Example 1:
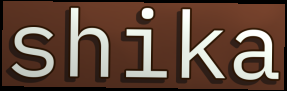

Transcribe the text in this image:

shika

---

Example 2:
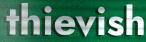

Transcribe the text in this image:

thievish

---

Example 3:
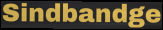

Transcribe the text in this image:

Sindbandge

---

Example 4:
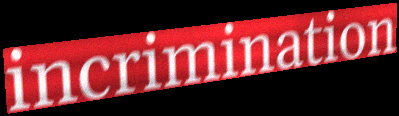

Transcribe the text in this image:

incrimination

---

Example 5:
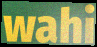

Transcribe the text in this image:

wahi